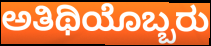
ಅತಿಥಿಯೊಬ್ಬರು